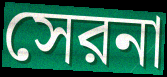
সেরনা